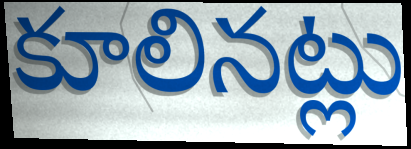
కూలినట్లు